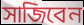
সাজিবেন